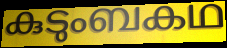
കുടുംബകഥ